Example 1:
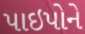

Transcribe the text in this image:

પાઇપોને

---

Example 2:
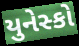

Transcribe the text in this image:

યુનેસ્કો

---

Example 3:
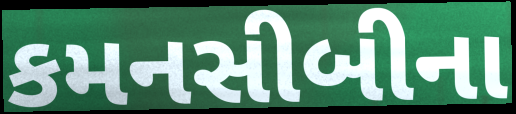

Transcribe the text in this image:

કમનસીબીના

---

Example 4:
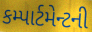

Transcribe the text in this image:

કમ્પાર્ટમેન્ટની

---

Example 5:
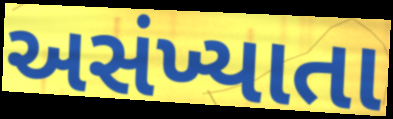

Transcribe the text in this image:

અસંખ્યાતા